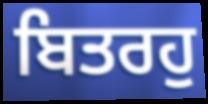
ਬਿਤਰਹੁ